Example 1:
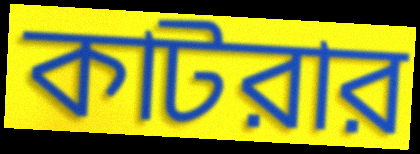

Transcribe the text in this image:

কাটরার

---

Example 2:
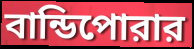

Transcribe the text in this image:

বান্ডিপোরার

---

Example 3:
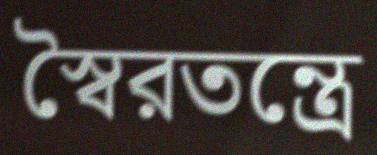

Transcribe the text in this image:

স্বৈরতন্ত্রে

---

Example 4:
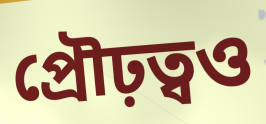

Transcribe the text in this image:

প্রৌঢ়ত্বও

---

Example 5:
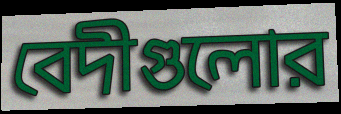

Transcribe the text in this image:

বেদীগুলোর